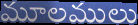
మూలములు